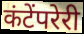
कंटेंपरेरी